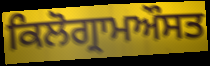
ਕਿਲੋਗ੍ਰਾਮਔਸਤ